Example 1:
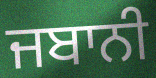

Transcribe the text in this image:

ਜਬਾਨੀ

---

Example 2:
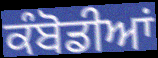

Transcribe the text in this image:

ਕੰਬੋਡੀਆਂ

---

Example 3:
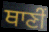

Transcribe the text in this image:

ਥਾਣੀਂ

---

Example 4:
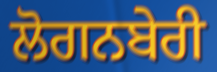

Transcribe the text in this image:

ਲੋਗਨਬੇਰੀ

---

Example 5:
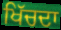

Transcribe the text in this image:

ਖਿੱਚਦਾ